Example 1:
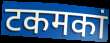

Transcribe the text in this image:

टकमकां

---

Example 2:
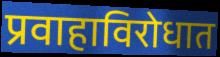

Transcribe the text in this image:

प्रवाहाविरोधात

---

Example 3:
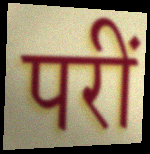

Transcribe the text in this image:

परीं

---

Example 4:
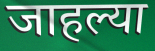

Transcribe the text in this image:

जाहल्या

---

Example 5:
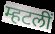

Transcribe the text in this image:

म्हटलीं